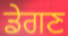
ਡੇਗਣ